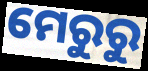
ମେରୁରୁ